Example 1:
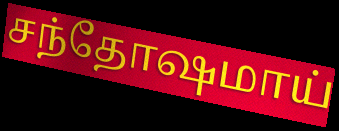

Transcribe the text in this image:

சந்தோஷமாய்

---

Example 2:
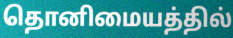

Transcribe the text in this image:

தொனிமையத்தில்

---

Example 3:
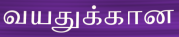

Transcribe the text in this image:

வயதுக்கான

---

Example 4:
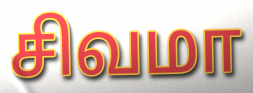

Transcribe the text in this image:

சிவமா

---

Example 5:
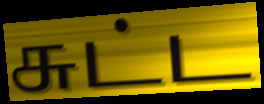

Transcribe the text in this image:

சுட்ட